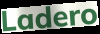
Ladero